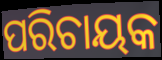
ପରିଚାୟକ